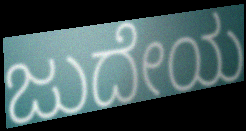
ಜುದೇಯ